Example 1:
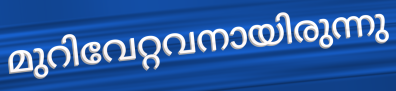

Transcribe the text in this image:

മുറിവേറ്റവനായിരുന്നു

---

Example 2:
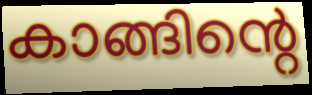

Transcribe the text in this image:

കാങ്ങിന്റെ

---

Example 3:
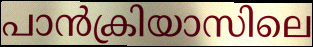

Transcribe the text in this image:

പാൻക്രിയാസിലെ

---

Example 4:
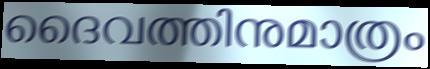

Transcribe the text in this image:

ദൈവത്തിനുമാത്രം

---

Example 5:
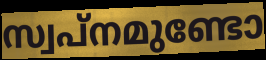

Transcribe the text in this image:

സ്വപ്നമുണ്ടോ